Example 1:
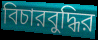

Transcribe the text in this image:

বিচারবুদ্ধির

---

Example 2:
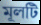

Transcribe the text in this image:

মূলটি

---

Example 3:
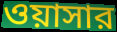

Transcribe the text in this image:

ওয়াসার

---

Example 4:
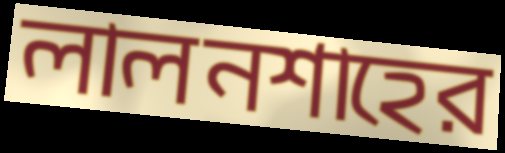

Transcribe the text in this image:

লালনশাহের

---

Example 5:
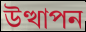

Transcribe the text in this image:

উত্থাপন